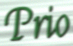
Prio